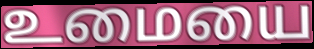
உமையை